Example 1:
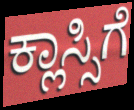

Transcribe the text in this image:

ಕ್ಲಾಸ್ಸಿಗೆ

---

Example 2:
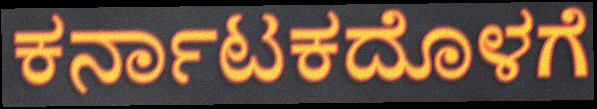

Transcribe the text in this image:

ಕರ್ನಾಟಕದೊಳಗೆ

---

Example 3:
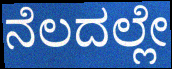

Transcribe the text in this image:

ನೆಲದಲ್ಲೇ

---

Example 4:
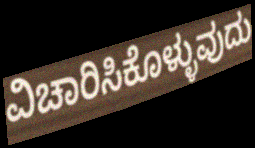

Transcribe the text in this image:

ವಿಚಾರಿಸಿಕೊಳ್ಳುವುದು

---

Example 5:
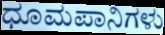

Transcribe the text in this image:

ಧೂಮಪಾನಿಗಳು